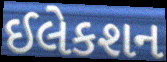
ઈલેકશન